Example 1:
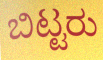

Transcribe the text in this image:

ಬಿಟ್ಟರು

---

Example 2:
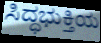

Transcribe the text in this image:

ಸಿದ್ಧಭುಕ್ತಿಯ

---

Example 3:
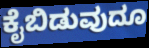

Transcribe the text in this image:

ಕೈಬಿಡುವುದೂ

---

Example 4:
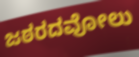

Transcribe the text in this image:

ಜಠರದವೋಲು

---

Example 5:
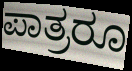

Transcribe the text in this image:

ಪಾತ್ರರೂ